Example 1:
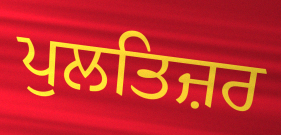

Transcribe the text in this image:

ਪੁਲਤਿਜ਼ਰ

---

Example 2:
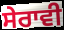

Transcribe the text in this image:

ਸੇਰਾਵੀ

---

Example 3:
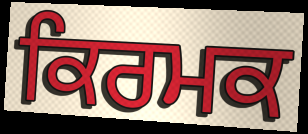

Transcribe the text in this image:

ਕਿਰਮਕ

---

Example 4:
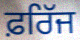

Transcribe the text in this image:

ਫ਼ਰਿੱਜ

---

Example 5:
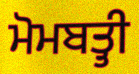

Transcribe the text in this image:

ਮੋਮਬਤ੍ਤੀ